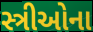
સ્ત્રીઓના